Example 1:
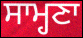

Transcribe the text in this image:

ਸਾਮ੍ਹਣਾ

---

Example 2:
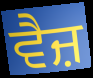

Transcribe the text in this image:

ਵੈਜ਼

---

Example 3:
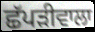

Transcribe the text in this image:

ਛੱਪੜੀਵਾਲਾ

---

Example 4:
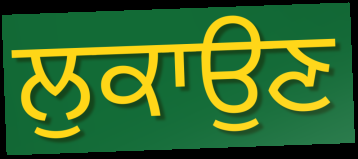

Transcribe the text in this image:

ਲੁਕਾਉਣ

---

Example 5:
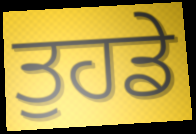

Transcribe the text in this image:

ਤੁਹਡੇ